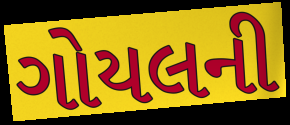
ગોયલની